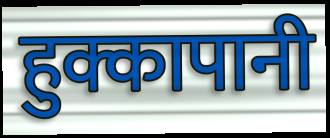
हुक्कापानी